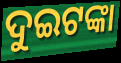
ଦୁଇଟଙ୍କା